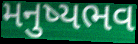
મનુષ્યભવ